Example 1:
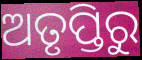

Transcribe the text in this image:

ଅତୃପ୍ତିରୁ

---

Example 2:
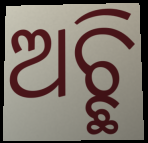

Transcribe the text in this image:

ଅଚ୍ଛି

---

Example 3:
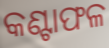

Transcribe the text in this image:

କଣ୍ଟାଫଳ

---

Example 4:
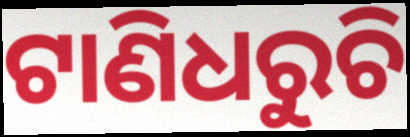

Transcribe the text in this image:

ଟାଣିଧରୁଚି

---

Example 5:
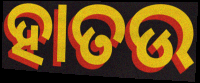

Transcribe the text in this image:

ହାତଉ